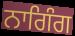
ਨਾਗਿੰਗ